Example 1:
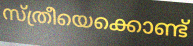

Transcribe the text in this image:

സ്ത്രീയെക്കൊണ്ട്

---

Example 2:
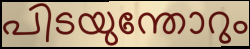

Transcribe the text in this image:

പിടയുന്തോറും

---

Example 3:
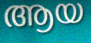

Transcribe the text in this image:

ആയ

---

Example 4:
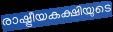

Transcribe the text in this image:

രാഷ്ട്രീയകക്ഷിയുടെ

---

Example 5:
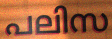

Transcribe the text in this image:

പലിസ